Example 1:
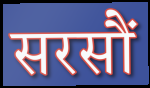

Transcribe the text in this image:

सरसौं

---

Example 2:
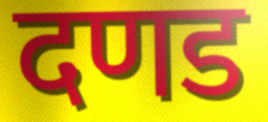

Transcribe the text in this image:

दणड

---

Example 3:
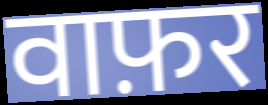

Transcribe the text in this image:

वाफ़र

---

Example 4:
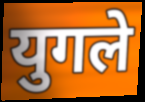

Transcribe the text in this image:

युगले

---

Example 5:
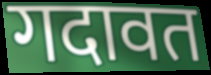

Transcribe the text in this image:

गदावत